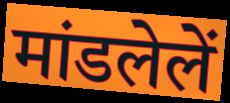
मांडलेलें